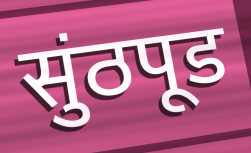
सुंठपूड